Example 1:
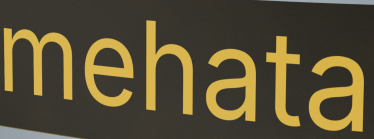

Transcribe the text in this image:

mehata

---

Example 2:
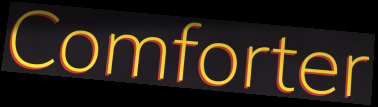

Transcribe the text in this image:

Comforter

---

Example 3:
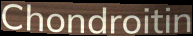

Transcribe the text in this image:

Chondroitin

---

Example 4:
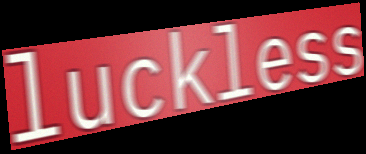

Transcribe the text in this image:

luckless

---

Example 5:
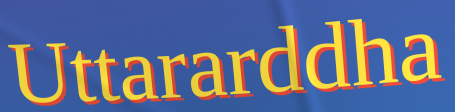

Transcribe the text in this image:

Uttararddha